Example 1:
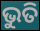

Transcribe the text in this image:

ଭୁତି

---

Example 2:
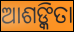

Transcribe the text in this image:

ଆଶଙ୍କିତା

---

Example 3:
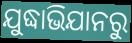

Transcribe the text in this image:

ଯୁଦ୍ଧାଭିଯାନରୁ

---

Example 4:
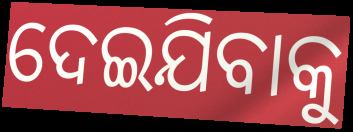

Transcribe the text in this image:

ଦେଇଯିବାକୁ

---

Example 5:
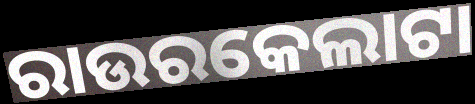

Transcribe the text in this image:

ରାଉରକେଲାଟା